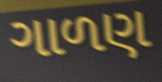
ગાળણ